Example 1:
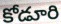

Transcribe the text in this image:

కోడూరి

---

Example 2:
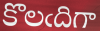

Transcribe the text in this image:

కొలఁదిగా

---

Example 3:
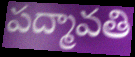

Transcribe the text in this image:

పద్మావతి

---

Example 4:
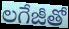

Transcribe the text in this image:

లగేజీతో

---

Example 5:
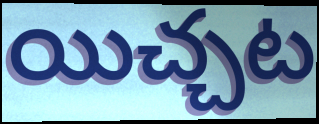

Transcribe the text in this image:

యిచ్చట